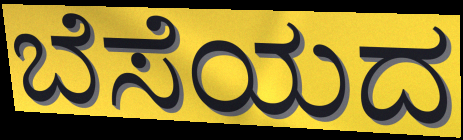
ಬೆಸೆಯದ